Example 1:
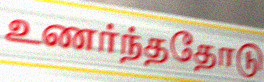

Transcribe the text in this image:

உணர்ந்ததோடு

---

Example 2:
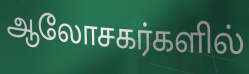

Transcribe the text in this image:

ஆலோசகர்களில்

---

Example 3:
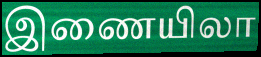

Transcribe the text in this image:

இணையிலா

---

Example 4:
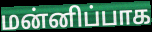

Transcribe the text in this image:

மன்னிப்பாக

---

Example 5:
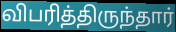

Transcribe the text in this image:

விபரித்திருந்தார்